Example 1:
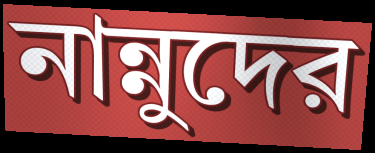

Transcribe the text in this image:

নান্নুদের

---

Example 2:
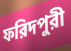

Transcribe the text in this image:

ফরিদপুরী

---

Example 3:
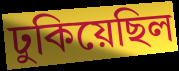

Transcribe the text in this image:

ঢুকিয়েছিল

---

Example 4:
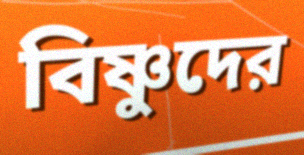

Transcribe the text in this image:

বিষ্ণুদের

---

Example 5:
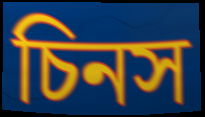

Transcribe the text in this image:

চিনস